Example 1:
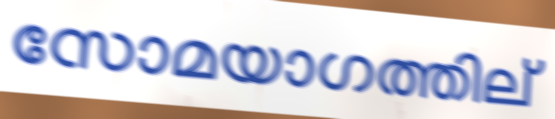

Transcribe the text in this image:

സോമയാഗത്തില്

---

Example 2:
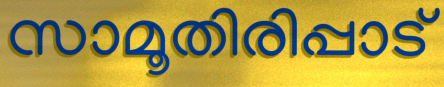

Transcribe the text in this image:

സാമൂതിരിപ്പാട്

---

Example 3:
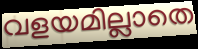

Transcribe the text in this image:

വളയമില്ലാതെ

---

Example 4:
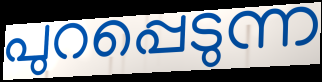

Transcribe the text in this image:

പുറപ്പെടുന്ന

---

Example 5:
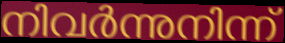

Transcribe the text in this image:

നിവർന്നുനിന്ന്